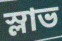
স্লাভ